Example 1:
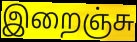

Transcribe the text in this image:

இறைஞ்சு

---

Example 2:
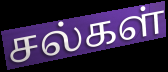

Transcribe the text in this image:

சல்கள்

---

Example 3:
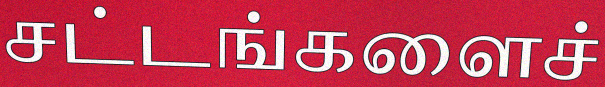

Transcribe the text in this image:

சட்டங்களைச்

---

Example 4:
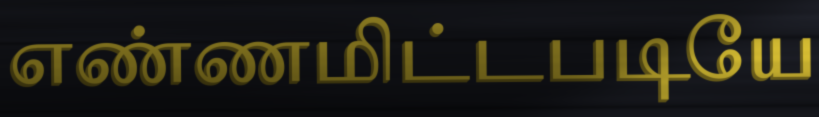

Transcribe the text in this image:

எண்ணமிட்டபடியே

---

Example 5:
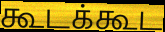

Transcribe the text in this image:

கூடக்கூட